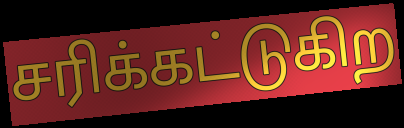
சரிக்கட்டுகிற